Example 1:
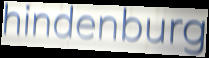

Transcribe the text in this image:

hindenburg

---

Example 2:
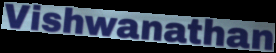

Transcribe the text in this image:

Vishwanathan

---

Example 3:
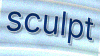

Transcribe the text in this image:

sculpt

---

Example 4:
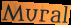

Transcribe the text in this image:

Mural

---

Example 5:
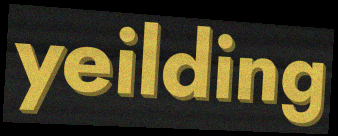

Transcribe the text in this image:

yeilding